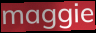
maggie